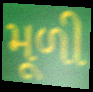
મૂળી